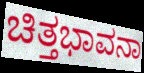
ಚಿತ್ತಭಾವನಾ